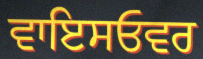
ਵਾਇਸਓਵਰ